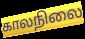
காலநிலை